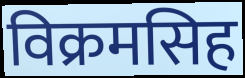
विक्रमसिह